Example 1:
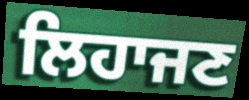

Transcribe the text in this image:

ਲਿਹਾਜਣ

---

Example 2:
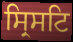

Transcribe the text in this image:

ਸ੍ਰਿਸਟਿ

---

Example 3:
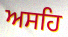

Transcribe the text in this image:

ਅਸਹਿ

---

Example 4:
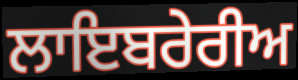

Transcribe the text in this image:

ਲਾਇਬਰੇਰੀਅ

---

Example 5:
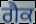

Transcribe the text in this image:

ਗੈਕ